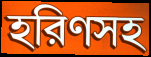
হরিণসহ